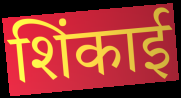
शिंकाई